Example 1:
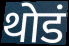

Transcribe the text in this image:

थोडं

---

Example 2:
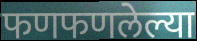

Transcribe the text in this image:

फणफणलेल्या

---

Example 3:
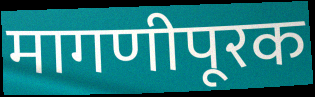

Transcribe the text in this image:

मागणीपूरक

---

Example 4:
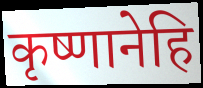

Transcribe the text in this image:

कृष्णानेहि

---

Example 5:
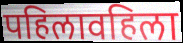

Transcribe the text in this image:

पहिलावहिला